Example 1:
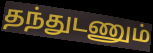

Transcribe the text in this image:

தந்துடணும்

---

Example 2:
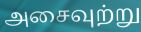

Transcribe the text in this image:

அசைவுற்று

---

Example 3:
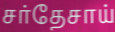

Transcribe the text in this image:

சர்தேசாய்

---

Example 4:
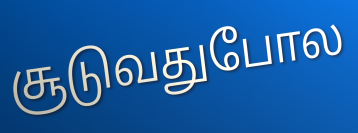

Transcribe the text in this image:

சூடுவதுபோல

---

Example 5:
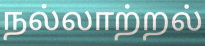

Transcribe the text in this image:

நல்லாற்றல்